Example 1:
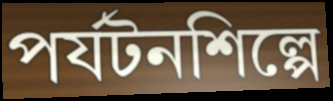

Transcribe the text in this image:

পর্যটনশিল্পে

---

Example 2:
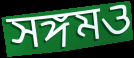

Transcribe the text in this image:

সঙ্গমও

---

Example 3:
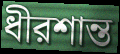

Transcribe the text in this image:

ধীরশান্ত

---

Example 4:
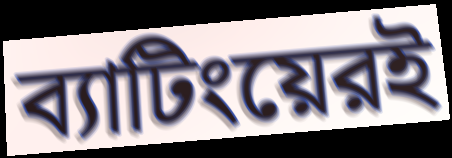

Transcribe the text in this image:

ব্যাটিংয়েরই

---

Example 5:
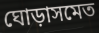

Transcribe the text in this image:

ঘোড়াসমেত